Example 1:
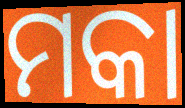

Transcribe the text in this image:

ମକା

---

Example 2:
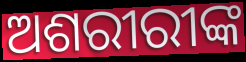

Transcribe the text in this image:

ଅଶରୀରୀଙ୍କ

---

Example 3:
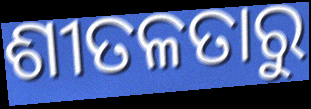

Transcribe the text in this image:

ଶୀତଳତାରୁ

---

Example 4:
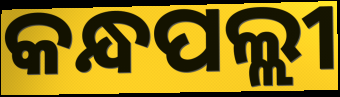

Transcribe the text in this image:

କନ୍ଧପଲ୍ଲୀ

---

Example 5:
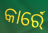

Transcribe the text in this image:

କାର୍ରେ